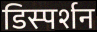
डिस्पर्शन